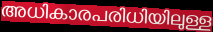
അധികാരപരിധിയിലുള്ള